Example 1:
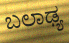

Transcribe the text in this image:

ಬಲಾಢ್ಯ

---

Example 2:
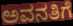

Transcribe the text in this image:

ಅವನತಿಗೆ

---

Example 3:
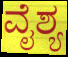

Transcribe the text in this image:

ವೈಶ್ಯ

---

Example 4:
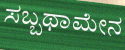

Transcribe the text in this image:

ಸಬ್ಬಥಾಮೇನ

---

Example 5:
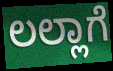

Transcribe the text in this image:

ಲಲ್ಲಾಗೆ